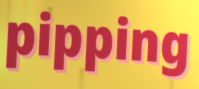
pipping